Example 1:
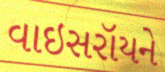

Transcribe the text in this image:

વાઇસરૉયને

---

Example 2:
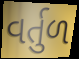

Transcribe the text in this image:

વર્તુળ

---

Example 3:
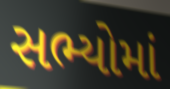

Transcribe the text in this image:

સભ્યોમાં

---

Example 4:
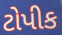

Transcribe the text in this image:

ટોપીક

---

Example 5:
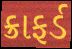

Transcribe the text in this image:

ક્રાફર્ડ